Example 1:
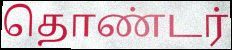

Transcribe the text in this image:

தொண்டர்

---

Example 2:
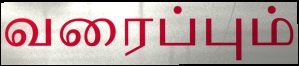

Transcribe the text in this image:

வரைப்பும்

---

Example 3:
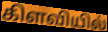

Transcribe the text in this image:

கிளவியில்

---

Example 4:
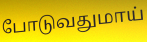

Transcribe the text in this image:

போடுவதுமாய்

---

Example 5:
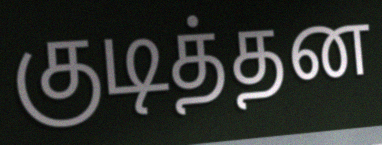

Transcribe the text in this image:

குடித்தன